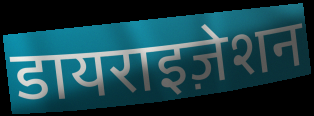
डायराइज़ेशन